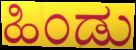
ಹಿಂಡು